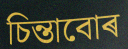
চিন্তাবোৰ